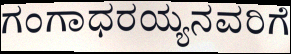
ಗಂಗಾಧರಯ್ಯನವರಿಗೆ